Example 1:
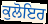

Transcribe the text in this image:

ਕੁਲੋਇਰ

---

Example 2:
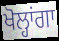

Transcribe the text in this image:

ਖੋਲ੍ਹਾਂਗਾ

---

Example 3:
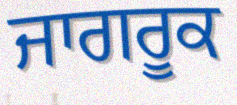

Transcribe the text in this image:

ਜਾਗਰੂਕ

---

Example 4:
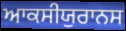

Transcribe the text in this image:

ਆਕਸੀਯੁਰਾਨਸ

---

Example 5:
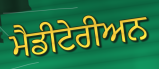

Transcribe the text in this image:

ਮੈਡੀਟੇਰੀਅਨ